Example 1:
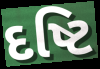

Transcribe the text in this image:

દષ્ટિ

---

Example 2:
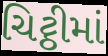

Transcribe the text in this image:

ચિટ્ઠીમાં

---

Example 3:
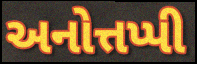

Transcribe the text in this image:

અનોત્તપ્પી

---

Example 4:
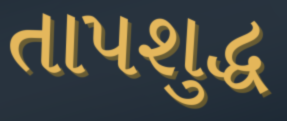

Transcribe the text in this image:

તાપશુદ્ધ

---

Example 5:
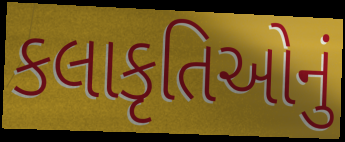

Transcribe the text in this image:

કલાકૃતિઓનું